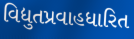
વિદ્યુતપ્રવાહધારિત